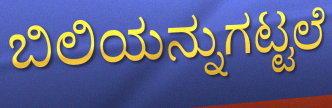
ಬಿಲಿಯನ್ನುಗಟ್ಟಲೆ